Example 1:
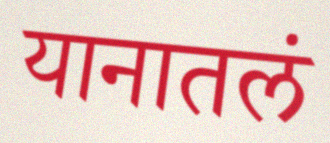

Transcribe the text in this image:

यानातलं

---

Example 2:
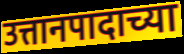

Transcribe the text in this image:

उत्तानपादाच्या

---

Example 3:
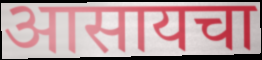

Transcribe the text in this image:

आसायचा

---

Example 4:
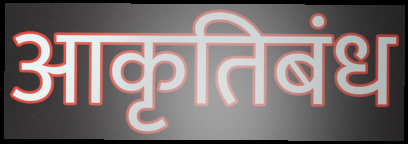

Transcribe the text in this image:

आकृतिबंध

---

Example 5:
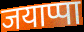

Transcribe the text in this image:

जयाप्पा